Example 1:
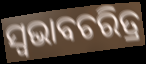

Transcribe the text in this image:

ସ୍ବଭାବଚରିତ୍ର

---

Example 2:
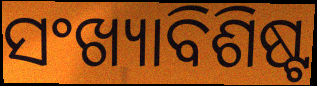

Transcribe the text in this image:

ସଂଖ୍ୟାବିଶିଷ୍ଟ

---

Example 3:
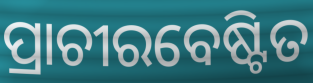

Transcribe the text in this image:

ପ୍ରାଚୀରବେଷ୍ଟିତ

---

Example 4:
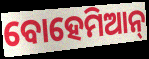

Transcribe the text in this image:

ବୋହେମିଆନ୍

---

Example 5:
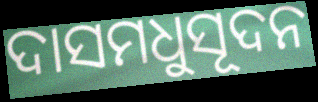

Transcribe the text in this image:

ଦାସମଧୁସୂଦନ